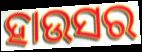
ହାଉସର